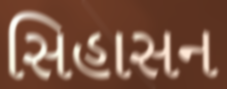
સિહાસન